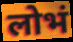
लोभं